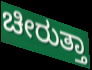
ಚೀರುತ್ತಾ